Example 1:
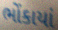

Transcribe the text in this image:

ભોંકાયાં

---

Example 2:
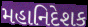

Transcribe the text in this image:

મહાનિદેશક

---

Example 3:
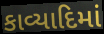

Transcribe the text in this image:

કાવ્યાદિમાં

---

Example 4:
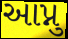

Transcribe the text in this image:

આપ્નુ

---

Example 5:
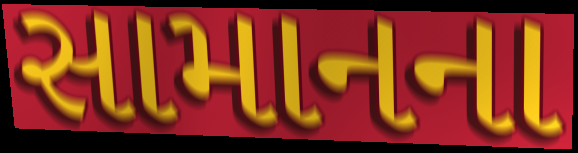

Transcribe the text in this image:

સામાનના